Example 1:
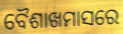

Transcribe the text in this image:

ବୈଶାଖମାସରେ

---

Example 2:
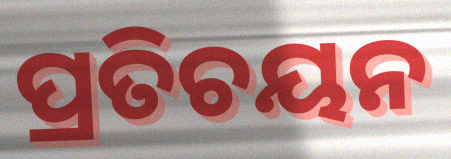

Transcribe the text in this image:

ପ୍ରତିଚୟନ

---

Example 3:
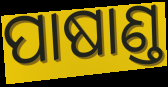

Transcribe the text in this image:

ପାଷାଣ୍ଡ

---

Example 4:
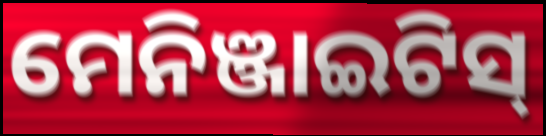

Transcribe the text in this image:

ମେନିଞ୍ଜାଇଟିସ୍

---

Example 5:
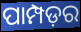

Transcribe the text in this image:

ପାମ୍ପଡ଼ର